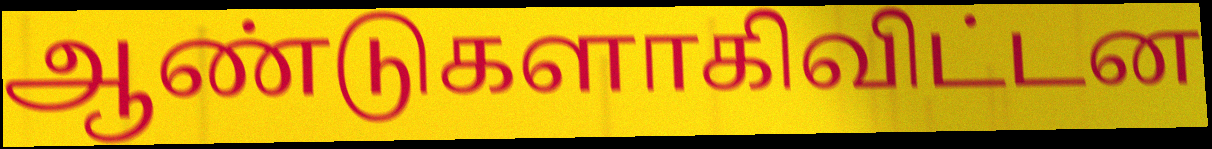
ஆண்டுகளாகிவிட்டன